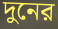
দুনের